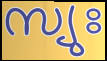
സ്യുഃ